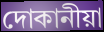
দোকানীয়া